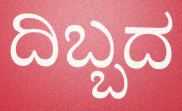
ದಿಬ್ಬದ